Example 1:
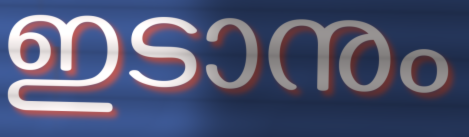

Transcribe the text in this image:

ഇടാനും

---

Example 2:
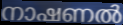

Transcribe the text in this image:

നാഷണൽ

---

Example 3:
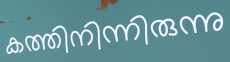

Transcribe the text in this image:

കത്തിനിന്നിരുന്നു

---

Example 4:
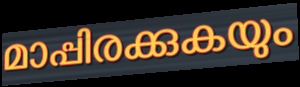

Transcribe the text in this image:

മാപ്പിരക്കുകയും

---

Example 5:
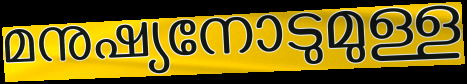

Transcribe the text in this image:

മനുഷ്യനോടുമുള്ള